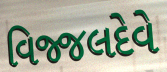
વિજ્જલદેવે